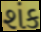
શંક